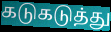
கடுகடுத்து